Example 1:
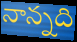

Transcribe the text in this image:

నాన్నది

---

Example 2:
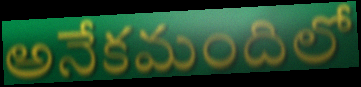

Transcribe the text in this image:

అనేకమందిలో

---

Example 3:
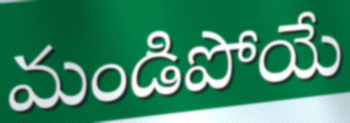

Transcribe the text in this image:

మండిపోయే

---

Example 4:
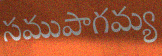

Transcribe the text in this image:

సముపాగమ్య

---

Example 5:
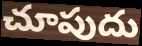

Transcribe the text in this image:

చూపుదు